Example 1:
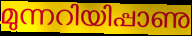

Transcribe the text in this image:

മുന്നറിയിപ്പാണു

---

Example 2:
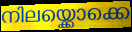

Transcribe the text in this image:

നിലയ്ക്കൊക്കെ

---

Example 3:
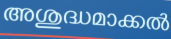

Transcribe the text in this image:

അശുദ്ധമാക്കൽ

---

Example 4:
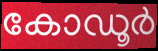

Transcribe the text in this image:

കോഡൂർ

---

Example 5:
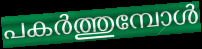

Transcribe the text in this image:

പകർത്തുമ്പോൾ